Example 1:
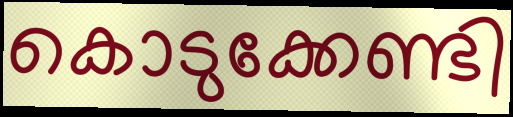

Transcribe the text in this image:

കൊടുക്കേണ്ടി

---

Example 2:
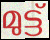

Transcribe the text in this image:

മുട്ട്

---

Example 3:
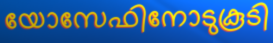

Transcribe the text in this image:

യോസേഫിനോടുകൂടി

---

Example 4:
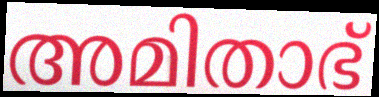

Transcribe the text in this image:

അമിതാഭ്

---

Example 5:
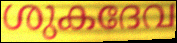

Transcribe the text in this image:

ശുകദേവ